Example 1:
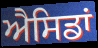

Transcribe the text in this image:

ਐਸਿਡਾਂ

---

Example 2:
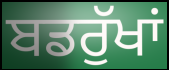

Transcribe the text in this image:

ਬਡਰੁੱਖਾਂ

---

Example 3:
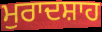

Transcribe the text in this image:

ਮੁਰਾਦਸ਼ਾਹ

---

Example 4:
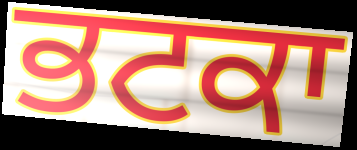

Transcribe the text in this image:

ਭਟਕਾ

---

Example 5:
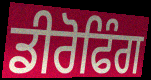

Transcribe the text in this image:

ਡੀਰੋਫਿੰਗ